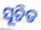
ସୂଚିତ